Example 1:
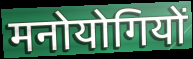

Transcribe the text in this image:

मनोयोगियों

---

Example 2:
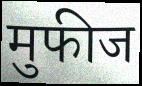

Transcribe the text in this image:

मुफीज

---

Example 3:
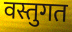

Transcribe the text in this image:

वस्तुगत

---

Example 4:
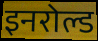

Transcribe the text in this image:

इनरोल्ड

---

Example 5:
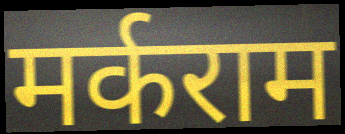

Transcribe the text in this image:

मर्कराम